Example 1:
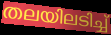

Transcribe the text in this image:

തലയിലടിച്ച്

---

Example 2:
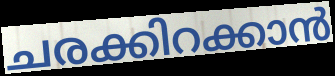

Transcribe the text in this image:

ചരക്കിറക്കാൻ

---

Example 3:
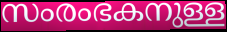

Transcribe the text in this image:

സംരംഭകനുള്ള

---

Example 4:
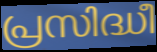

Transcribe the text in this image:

പ്രസിദ്ധീ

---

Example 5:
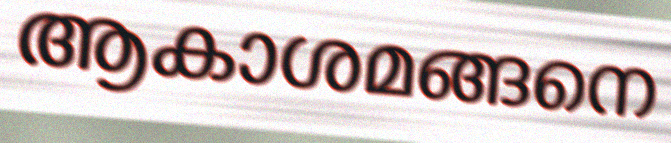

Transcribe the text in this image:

ആകാശമങ്ങനെ